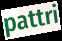
pattri